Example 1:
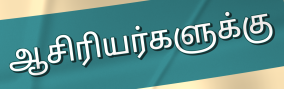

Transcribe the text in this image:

ஆசிரியர்களுக்கு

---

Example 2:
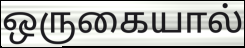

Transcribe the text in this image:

ஒருகையால்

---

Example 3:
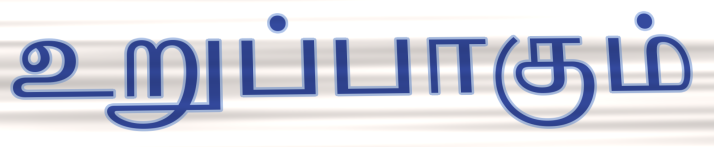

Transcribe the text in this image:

உறுப்பாகும்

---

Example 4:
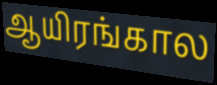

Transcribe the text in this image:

ஆயிரங்கால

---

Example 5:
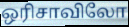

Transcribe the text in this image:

ஒரிசாவிலோ